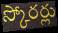
స్కోరర్లు